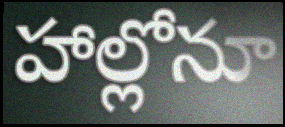
హాల్లోనూ